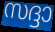
സദ്ദാ